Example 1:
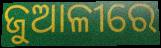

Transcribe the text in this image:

ଜୁଆଳୀରେ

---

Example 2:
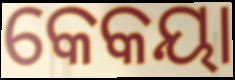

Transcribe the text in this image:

କେକୟା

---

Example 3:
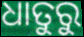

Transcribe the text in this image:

ଧାତୁରୁ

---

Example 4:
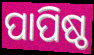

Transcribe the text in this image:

ପାପିଷ୍ଠ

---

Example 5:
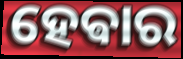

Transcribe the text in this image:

ହେଵାର